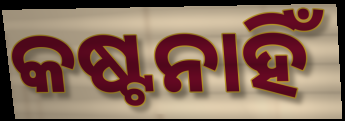
କଷ୍ଟନାହିଁ